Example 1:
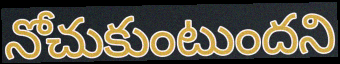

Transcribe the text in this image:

నోచుకుంటుందని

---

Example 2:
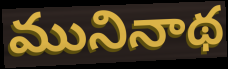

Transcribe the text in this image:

మునినాథ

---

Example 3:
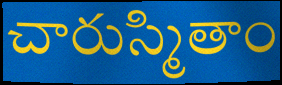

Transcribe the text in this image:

చారుస్మితాం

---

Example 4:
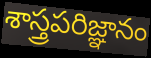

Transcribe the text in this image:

శాస్త్రపరిజ్ఞానం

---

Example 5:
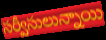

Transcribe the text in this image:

సర్వీసులున్నాయి